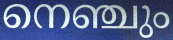
നെഞ്ചും